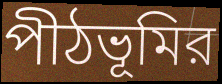
পীঠভূমির